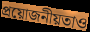
প্ৰয়োজনীয়তাও